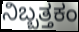
ನಿಬ್ಬತ್ತಕಂ